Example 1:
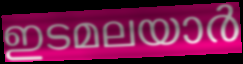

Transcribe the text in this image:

ഇടമലയാർ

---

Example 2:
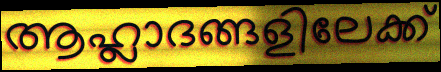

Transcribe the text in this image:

ആഹ്ലാദങ്ങളിലേക്ക്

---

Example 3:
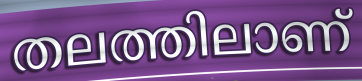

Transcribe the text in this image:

തലത്തിലാണ്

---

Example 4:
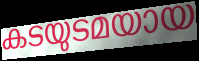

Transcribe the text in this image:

കടയുടമയായ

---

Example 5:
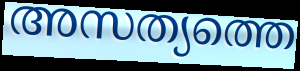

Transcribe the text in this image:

അസത്യത്തെ